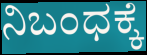
ನಿಬಂಧಕ್ಕೆ